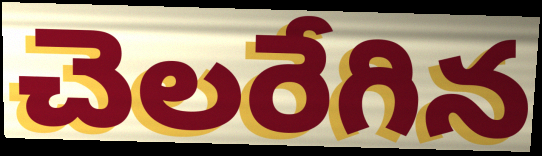
చెలరేగిన